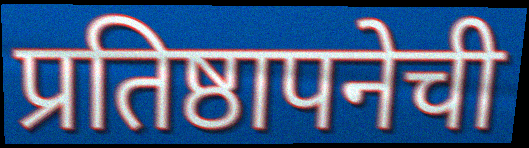
प्रतिष्ठापनेची